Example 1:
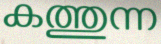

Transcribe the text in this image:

കത്തുന്ന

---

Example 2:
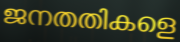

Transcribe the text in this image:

ജനതതികളെ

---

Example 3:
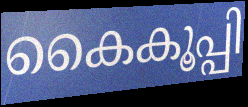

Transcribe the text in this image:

കൈകൂപ്പി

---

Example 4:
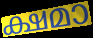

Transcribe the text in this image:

ക്ഷമാ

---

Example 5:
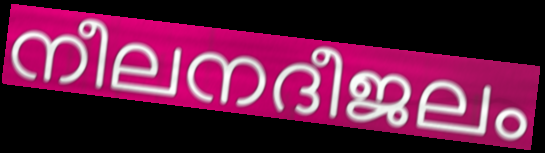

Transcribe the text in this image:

നീലനദീജലം